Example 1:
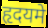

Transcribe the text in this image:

हृदयमे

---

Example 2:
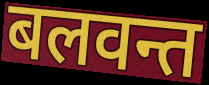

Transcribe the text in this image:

बलवन्त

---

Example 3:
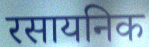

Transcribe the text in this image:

रसायनिक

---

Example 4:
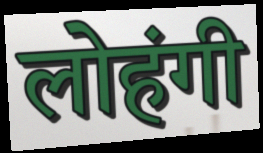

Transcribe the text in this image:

लोहंगी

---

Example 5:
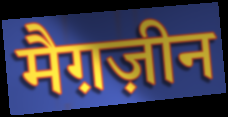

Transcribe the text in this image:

मैग़ज़ीन